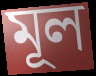
মূল